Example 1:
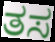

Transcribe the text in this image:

ತಸ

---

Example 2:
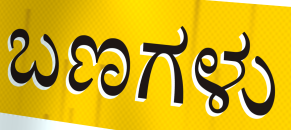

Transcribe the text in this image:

ಬಣಗಳು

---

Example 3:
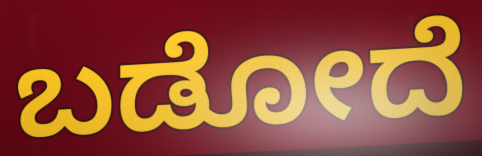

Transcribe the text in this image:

ಬಡೋದೆ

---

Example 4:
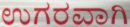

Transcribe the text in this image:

ಉಗರವಾಗಿ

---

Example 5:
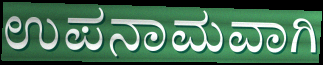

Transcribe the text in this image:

ಉಪನಾಮವಾಗಿ